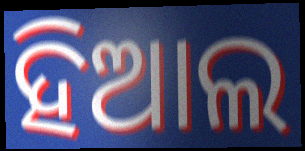
ହିଆଲ